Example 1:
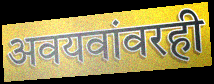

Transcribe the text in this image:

अवयवांवरही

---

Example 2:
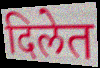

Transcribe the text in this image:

दिलेत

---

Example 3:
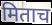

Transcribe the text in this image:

मिताच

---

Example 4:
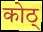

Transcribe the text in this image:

कोठ्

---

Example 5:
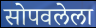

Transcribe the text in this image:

सोपवलेला